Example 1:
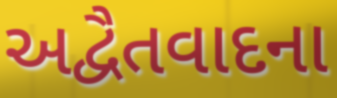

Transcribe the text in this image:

અદ્વૈતવાદના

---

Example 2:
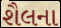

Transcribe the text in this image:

શૈલના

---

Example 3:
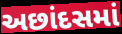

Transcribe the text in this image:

અછાંદસમાં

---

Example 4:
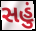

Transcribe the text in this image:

સહું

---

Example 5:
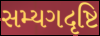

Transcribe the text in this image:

સમ્યગદૃષ્ટિ